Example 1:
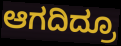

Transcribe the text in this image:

ಆಗದಿದ್ರೂ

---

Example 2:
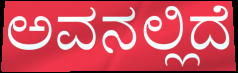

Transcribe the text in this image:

ಅವನಲ್ಲಿದೆ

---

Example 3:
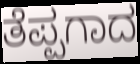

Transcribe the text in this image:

ತೆಪ್ಪಗಾದ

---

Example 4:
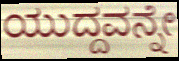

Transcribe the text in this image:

ಯುದ್ದವನ್ನೇ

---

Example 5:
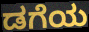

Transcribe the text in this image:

ಡಗೆಯ